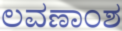
ಲವಣಾಂಶ